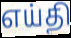
எய்தி